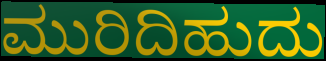
ಮುರಿದಿಹುದು